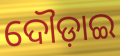
ଦୌଡ଼ାଇ